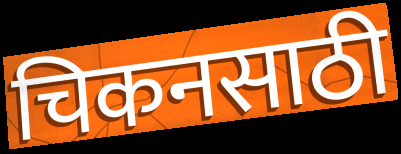
चिकनसाठी